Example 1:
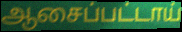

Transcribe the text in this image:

ஆசைப்பட்டாய்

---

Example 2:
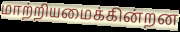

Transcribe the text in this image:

மாற்றியமைக்கின்றன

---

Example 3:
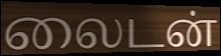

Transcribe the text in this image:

லைடன்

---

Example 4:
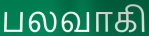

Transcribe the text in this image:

பலவாகி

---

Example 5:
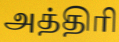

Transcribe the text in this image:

அத்திரி